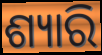
ଶ୍ୟାରି